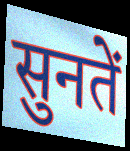
सुनतें